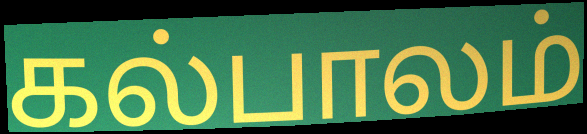
கல்பாலம்